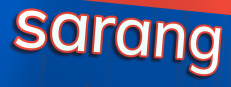
sarang